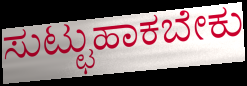
ಸುಟ್ಟುಹಾಕಬೇಕು